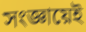
সংজ্ঞায়েই